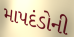
માપદંડોની